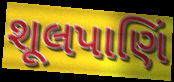
શૂલપાણિં